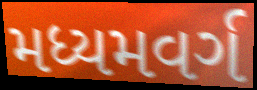
મધ્યમવર્ગ